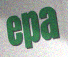
epa